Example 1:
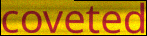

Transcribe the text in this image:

coveted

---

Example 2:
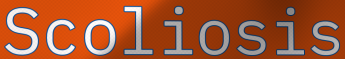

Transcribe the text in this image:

Scoliosis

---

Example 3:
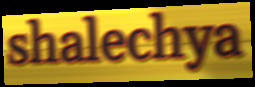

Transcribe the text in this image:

shalechya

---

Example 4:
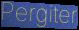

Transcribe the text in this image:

Pergiter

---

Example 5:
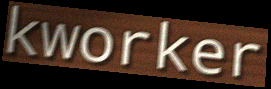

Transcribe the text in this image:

kworker